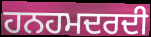
ਹਨਹਮਦਰਦੀ